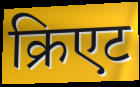
क्रिएट